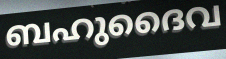
ബഹുദൈവ